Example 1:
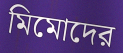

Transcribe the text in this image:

মিমোদের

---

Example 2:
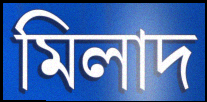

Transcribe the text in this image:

মিলাদ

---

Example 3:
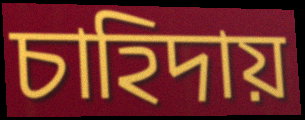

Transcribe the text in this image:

চাহিদায়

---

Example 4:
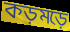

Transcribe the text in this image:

কড়মড়ে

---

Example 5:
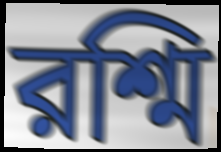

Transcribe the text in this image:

রশ্মি